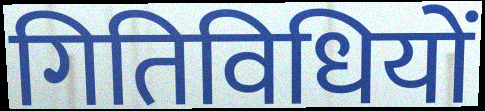
गितिविधियों